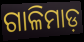
ଗାଳିମାଡ଼